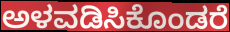
ಅಳವಡಿಸಿಕೊಂಡರೆ